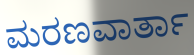
ಮರಣವಾರ್ತಾ